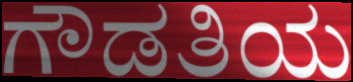
ಗೌಡತಿಯ